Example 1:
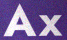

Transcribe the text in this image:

Ax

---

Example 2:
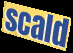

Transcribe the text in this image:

scald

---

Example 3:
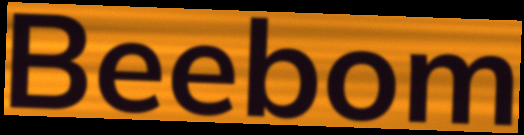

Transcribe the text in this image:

Beebom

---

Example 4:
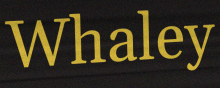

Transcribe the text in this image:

Whaley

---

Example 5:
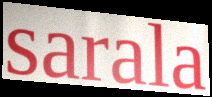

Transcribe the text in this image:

sarala